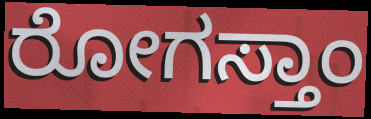
ರೋಗಸ್ತಾಂ